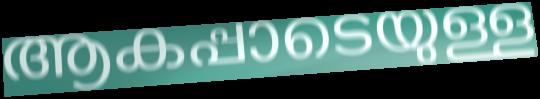
ആകപ്പാടെയുള്ള